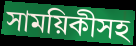
সাময়িকীসহ